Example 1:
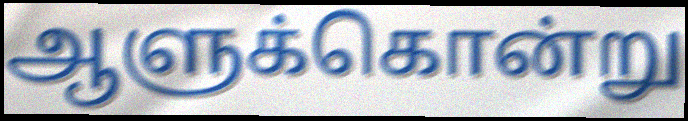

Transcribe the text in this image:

ஆளுக்கொன்று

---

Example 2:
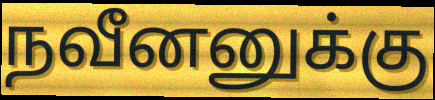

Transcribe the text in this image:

நவீனனுக்கு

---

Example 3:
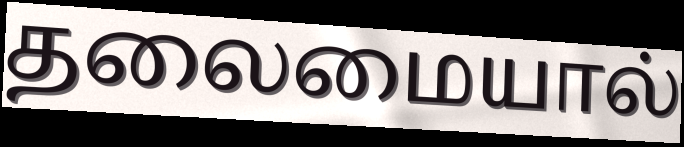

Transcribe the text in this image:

தலைமையால்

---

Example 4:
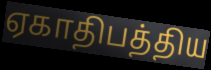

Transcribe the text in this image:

ஏகாதிபத்திய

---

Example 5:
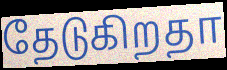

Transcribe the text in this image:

தேடுகிறதா